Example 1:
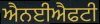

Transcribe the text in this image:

ਐਨਈਐਫਟੀ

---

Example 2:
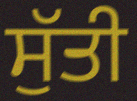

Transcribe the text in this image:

ਸੁੱਤੀ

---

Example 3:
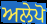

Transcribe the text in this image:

ਅਲੇਪੋ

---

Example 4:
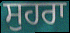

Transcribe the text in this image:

ਸੁਹਰਾ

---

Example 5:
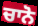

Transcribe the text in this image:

ਚਾਨੋ